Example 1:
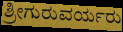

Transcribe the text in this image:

ಶ್ರೀಗುರುವರ್ಯರು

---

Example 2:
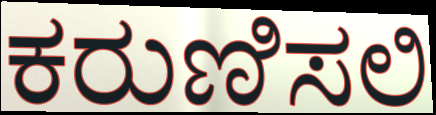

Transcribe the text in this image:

ಕರುಣಿಸಲಿ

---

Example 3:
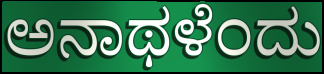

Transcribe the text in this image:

ಅನಾಥಳೆಂದು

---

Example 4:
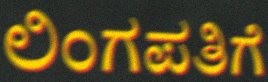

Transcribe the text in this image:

ಲಿಂಗಪತಿಗೆ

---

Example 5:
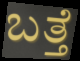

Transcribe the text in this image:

ಬತ್ತೆ